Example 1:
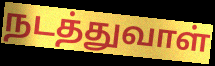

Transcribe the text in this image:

நடத்துவாள்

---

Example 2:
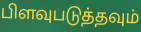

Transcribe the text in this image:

பிளவுபடுத்தவும்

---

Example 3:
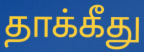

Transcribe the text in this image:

தாக்கீது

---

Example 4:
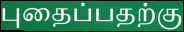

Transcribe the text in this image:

புதைப்பதற்கு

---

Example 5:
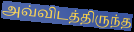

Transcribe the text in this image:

அவ்விடத்திருந்த